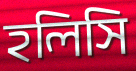
হলিসি